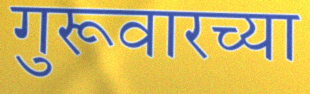
गुरूवारच्या